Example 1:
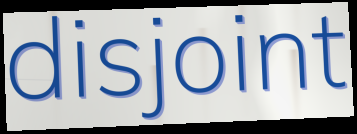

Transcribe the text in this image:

disjoint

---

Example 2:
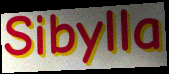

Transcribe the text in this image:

Sibylla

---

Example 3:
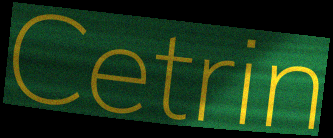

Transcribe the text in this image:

Cetrin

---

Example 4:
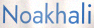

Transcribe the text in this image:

Noakhali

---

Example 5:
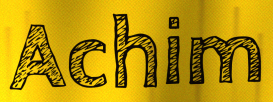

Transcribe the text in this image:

Achim